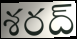
శరద్